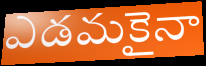
ఎడమకైనా